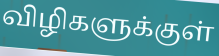
விழிகளுக்குள்